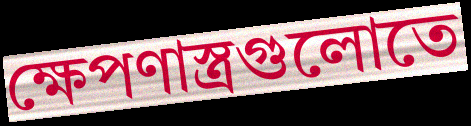
ক্ষেপণাস্ত্রগুলোতে